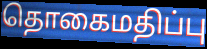
தொகைமதிப்பு